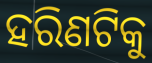
ହରିଣଟିକୁ